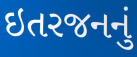
ઇતરજનનું